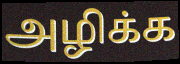
அழிக்க